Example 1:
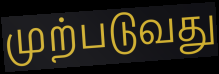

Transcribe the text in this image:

முற்படுவது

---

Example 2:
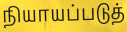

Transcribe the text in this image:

நியாயப்படுத்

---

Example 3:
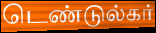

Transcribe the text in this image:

டெண்டுல்கர்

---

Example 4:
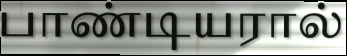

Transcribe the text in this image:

பாண்டியரால்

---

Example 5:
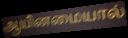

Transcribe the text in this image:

ஆயினமையால்